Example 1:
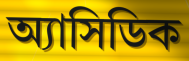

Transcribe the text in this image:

অ্যাসিডিক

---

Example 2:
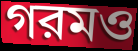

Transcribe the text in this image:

গরমও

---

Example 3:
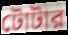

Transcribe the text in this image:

টোটার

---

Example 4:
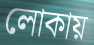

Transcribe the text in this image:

লোকায়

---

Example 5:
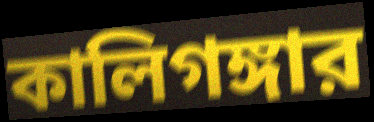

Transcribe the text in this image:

কালিগঙ্গার